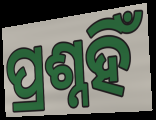
ପ୍ରଶ୍ନହିଁ